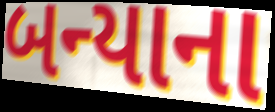
બન્યાના